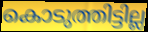
കൊടുത്തിട്ടില്ല